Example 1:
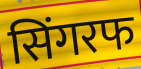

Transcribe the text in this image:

सिंगरफ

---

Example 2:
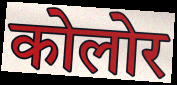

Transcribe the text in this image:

कोलोर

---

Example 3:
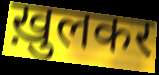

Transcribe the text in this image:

ख़ुलकर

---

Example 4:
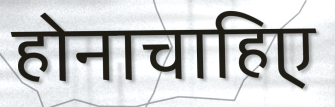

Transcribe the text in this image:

होनाचाहिए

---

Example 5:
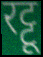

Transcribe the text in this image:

रट्टू